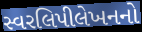
સ્વરલિપીલેખનનો